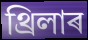
থ্ৰিলাৰ